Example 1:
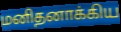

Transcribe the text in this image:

மனிதனாக்கிய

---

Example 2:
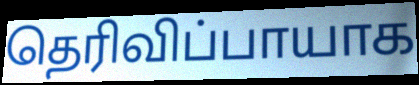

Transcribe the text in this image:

தெரிவிப்பாயாக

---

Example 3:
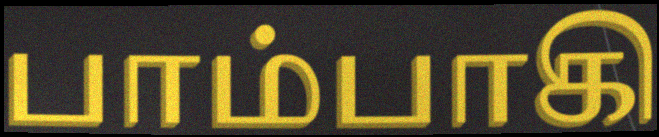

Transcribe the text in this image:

பாம்பாகி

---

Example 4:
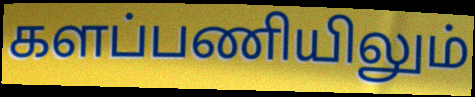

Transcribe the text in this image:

களப்பணியிலும்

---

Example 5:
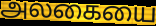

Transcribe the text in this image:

அலகையை